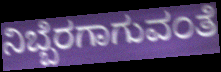
ನಿಬ್ಬೆರಗಾಗುವಂತೆ